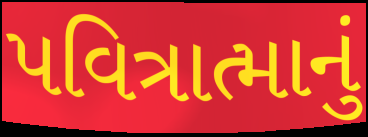
પવિત્રાત્માનું